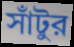
সাঁটুর